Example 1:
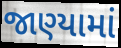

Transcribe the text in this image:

જાણ્યામાં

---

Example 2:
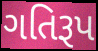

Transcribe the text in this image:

ગતિરૂપ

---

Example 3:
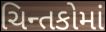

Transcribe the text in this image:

ચિન્તકોમાં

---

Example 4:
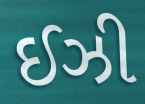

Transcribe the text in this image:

ઈઝી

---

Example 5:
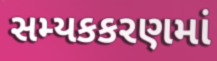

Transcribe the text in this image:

સમ્યકકરણમાં